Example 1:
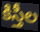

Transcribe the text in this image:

కిస్తీల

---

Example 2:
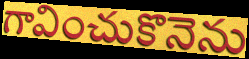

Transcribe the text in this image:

గావించుకొనెను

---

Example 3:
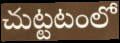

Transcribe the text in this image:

చుట్టటంలో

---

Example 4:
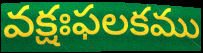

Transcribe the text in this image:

వక్షఃఫలకము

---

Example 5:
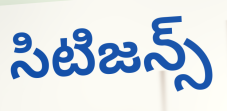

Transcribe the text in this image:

సిటిజన్స్